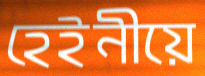
হেইনীয়ে